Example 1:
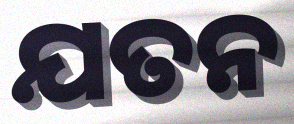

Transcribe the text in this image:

ଯତନ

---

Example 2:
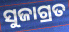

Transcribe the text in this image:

ସୁଜାଗ୍ରତ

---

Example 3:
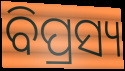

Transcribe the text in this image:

ବିପ୍ରସ୍ୟ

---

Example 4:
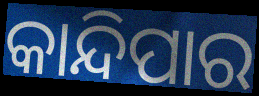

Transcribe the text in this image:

କାନ୍ଦିପାର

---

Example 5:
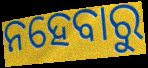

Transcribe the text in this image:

ନହେବାରୁ